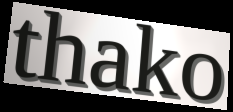
thako